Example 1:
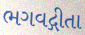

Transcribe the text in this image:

ભગવદ્ગીતા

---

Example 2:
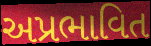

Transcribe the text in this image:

અપ્રભાવિત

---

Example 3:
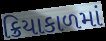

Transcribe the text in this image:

ક્રિયાકાળમાં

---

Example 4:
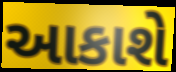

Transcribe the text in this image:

આકાશે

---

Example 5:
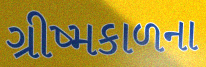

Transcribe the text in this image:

ગ્રીષ્મકાળના